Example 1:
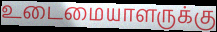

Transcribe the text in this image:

உடைமையாளருக்கு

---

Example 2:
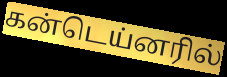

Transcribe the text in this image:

கன்டெய்னரில்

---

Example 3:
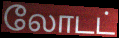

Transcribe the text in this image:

லோடட்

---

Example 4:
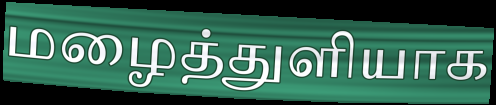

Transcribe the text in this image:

மழைத்துளியாக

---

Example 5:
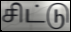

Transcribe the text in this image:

சிட்டு